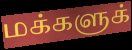
மக்களுக்